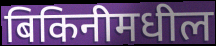
बिकिनीमधील